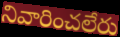
నివారించలేరు